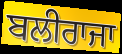
ਬਲੀਰਾਜਾ